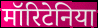
मॉरिटेनिया